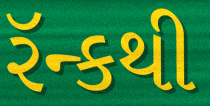
રૅન્કથી